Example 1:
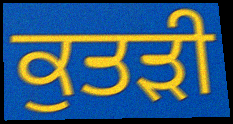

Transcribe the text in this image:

ਕੁਤੜੀ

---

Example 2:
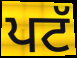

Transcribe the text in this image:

ਪਟੱ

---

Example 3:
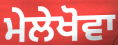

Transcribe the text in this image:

ਮੇਲੇਖੋਵਾ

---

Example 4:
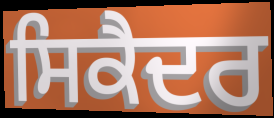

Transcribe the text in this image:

ਸਿਕੈਦਰ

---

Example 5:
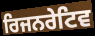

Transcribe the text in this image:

ਰਿਜਨਰੇਟਿਵ